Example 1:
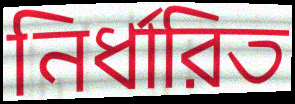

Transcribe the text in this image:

নির্ধারিত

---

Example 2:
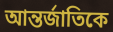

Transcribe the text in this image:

আন্তর্জাতিকে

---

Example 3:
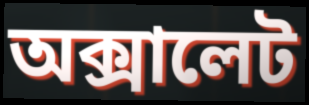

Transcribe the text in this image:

অক্সালেট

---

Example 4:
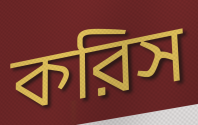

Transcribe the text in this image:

করিস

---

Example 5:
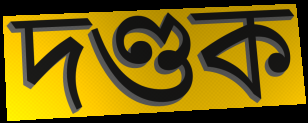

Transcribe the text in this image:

দণ্ডক